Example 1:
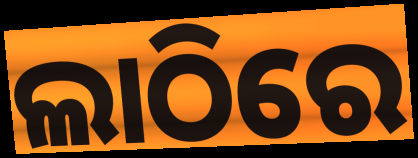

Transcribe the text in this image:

ଲାଠିରେ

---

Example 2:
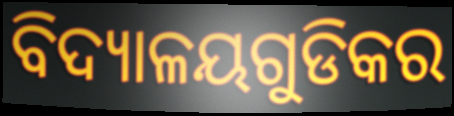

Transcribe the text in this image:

ବିଦ୍ୟାଳୟଗୁଡିକର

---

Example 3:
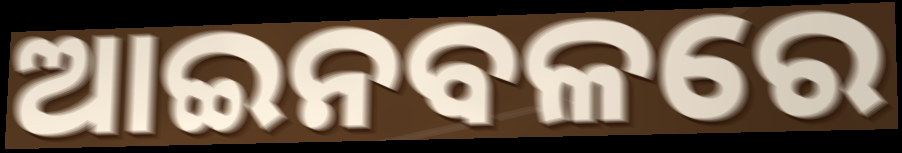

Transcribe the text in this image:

ଆଇନବଳରେ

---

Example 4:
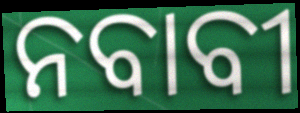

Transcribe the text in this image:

ନବାବୀ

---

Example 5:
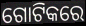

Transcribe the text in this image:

ଗୋଟିକରେ